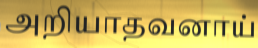
அறியாதவனாய்